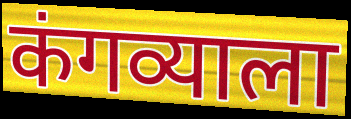
कंगव्याला